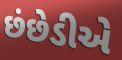
છંછેડીએ